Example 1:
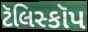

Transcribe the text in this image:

ટૅલિસ્કૉપ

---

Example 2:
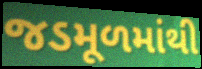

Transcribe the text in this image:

જડમૂળમાંથી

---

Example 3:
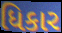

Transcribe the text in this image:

ધિકાર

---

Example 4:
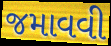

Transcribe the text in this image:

જમાવવી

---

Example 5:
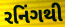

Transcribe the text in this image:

રનિંગથી